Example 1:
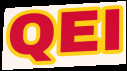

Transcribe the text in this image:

QEI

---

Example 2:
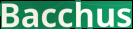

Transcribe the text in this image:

Bacchus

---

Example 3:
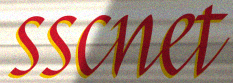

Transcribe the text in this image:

sscnet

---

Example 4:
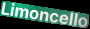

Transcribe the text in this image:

Limoncello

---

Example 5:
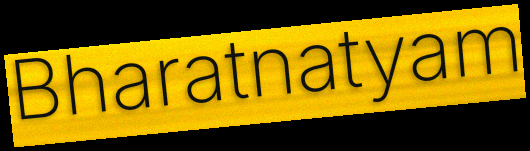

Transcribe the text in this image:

Bharatnatyam